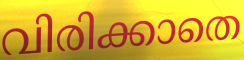
വിരിക്കാതെ